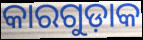
କାରଗୁଡ଼ାକ